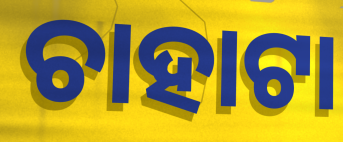
ଚାହାଟା